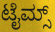
ಟೈಮ್ಸ್